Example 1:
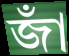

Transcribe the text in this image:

জাঁ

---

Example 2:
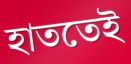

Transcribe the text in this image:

হাততেই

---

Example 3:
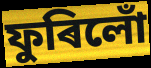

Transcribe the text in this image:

ফুৰিলোঁ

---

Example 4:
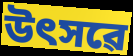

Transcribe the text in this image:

উৎসৱে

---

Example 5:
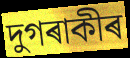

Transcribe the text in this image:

দুগৰাকীৰ